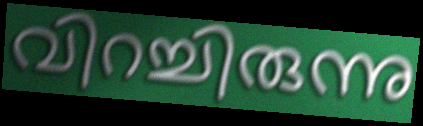
വിറച്ചിരുന്നു